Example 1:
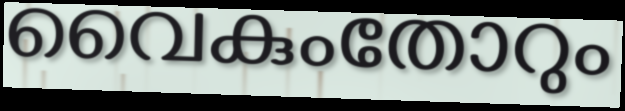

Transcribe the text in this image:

വൈകുംതോറും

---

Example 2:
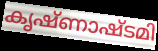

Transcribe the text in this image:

കൃഷ്ണാഷ്ടമി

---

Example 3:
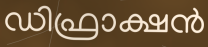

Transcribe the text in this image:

ഡിഫ്രാക്ഷൻ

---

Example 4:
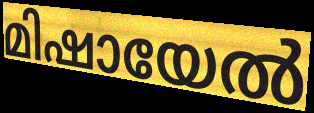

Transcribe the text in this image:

മിഷായേൽ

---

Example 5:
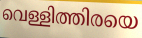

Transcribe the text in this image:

വെള്ളിത്തിരയെ